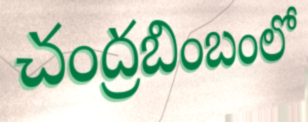
చంద్రబింబంలో